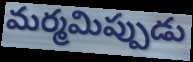
మర్మమిప్పుడు